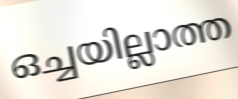
ഒച്ചയില്ലാത്ത